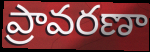
ప్రావరణా